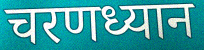
चरणध्यान